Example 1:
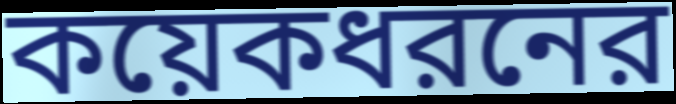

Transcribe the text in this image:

কয়েকধরনের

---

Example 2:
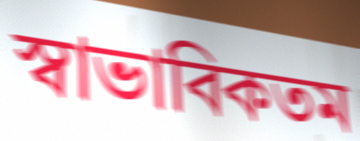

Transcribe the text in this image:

স্বাভাবিকতম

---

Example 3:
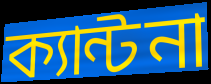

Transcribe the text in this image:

ক্যান্টনা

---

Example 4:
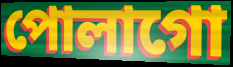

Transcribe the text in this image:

পোলাগো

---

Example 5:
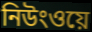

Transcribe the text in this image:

নিউংওয়ে